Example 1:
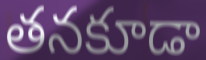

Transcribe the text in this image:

తనకూడా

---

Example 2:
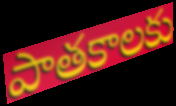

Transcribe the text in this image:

పాతకాలకు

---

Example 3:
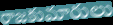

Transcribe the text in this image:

రాజకుమారులు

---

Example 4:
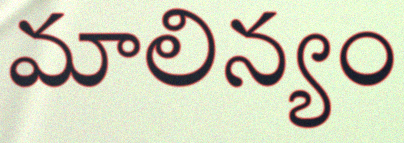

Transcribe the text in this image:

మాలిన్యం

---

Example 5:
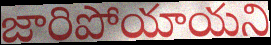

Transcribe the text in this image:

జారిపోయాయని